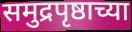
समुद्रपृष्ठाच्या